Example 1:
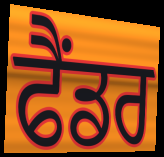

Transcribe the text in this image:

ਫੈਂਡਰ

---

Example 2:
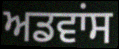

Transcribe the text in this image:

ਅਡਵਾਂਸ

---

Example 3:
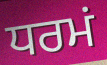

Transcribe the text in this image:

ਧਰਮਂ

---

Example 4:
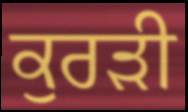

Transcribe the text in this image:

ਕੁਰੜੀ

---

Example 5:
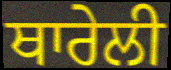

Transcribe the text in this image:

ਥਾਰੇਲੀ